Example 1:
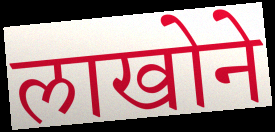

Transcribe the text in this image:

लाखोने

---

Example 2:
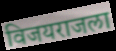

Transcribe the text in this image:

विजयराजला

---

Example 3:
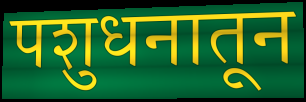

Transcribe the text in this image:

पशुधनातून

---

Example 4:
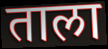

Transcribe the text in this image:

ताला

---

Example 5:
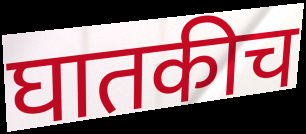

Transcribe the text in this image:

घातकीच